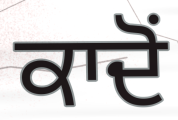
ਕਾਦੋਂ